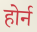
होर्न